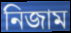
নিজাম